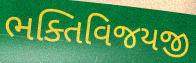
ભક્તિવિજયજી